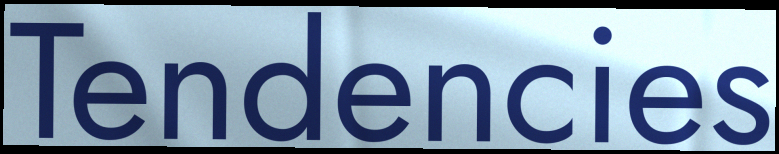
Tendencies